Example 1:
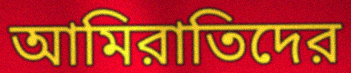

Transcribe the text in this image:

আমিরাতিদের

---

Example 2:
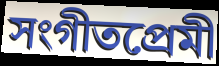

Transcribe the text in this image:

সংগীতপ্রেমী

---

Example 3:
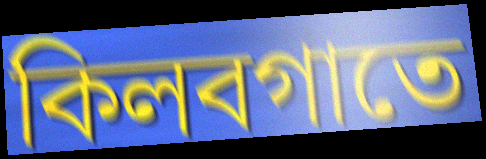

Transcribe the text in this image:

কিলবগাতে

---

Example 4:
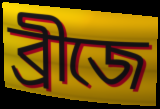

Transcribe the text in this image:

ব্রীজে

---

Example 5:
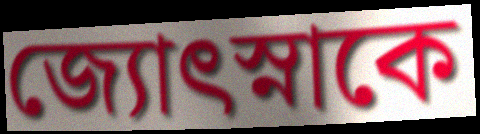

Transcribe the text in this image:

জ্যোৎস্নাকে